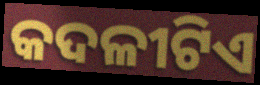
କଦଳୀଟିଏ